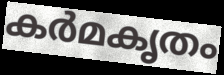
കർമകൃതം